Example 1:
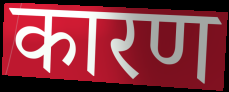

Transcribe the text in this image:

कारण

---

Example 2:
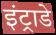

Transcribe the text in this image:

इंट्राडे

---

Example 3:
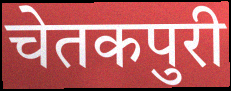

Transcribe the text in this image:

चेतकपुरी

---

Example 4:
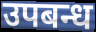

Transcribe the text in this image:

उपबन्ध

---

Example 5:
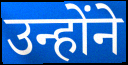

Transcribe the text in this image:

उन्होंने